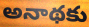
అనాథకు